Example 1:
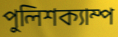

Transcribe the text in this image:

পুলিশক্যাম্প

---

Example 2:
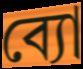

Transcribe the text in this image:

ব্যো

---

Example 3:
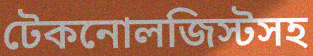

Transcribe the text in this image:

টেকনোলজিস্টসহ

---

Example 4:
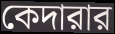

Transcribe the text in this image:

কেদারার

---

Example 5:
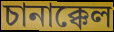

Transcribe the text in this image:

চানাক্কেল